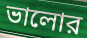
ভালোর